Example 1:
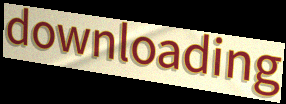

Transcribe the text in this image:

downloading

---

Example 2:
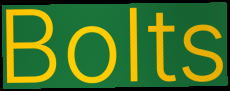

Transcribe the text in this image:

Bolts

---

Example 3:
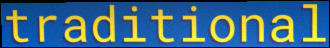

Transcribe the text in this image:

traditional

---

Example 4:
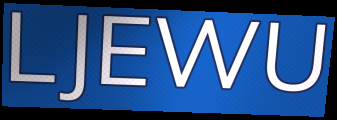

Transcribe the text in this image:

LJEWU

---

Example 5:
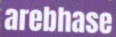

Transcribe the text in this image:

arebhase